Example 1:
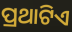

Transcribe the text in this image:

ପ୍ରଥାଟିଏ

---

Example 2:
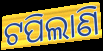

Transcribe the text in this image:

ଟପିଲାଣି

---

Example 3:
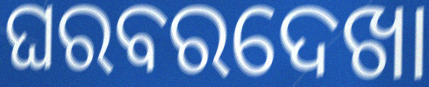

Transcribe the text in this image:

ଘରବରଦେଖା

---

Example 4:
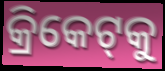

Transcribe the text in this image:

କ୍ରିକେଟ୍‌କୁ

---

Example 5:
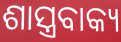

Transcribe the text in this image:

ଶାସ୍ତ୍ରବାକ୍ୟ